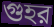
গুহর